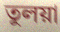
তুলয়া